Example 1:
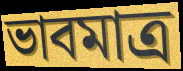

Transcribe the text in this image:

ভাবমাত্র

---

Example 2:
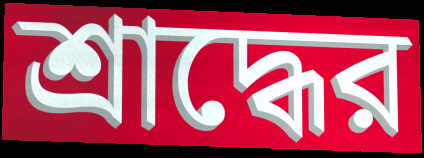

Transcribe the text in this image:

শ্রাদ্ধের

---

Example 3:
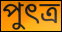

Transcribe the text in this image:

পুৎত্র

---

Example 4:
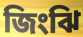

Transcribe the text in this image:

জিংঝি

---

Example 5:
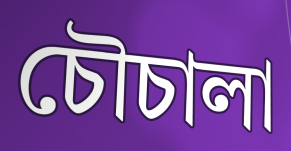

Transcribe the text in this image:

চৌচালা